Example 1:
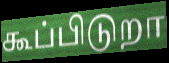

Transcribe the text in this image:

கூப்பிடுறா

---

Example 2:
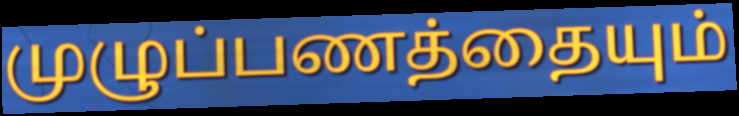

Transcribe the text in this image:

முழுப்பணத்தையும்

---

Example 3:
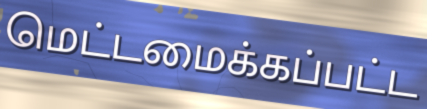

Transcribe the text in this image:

மெட்டமைக்கப்பட்ட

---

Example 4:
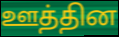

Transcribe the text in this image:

ஊத்தின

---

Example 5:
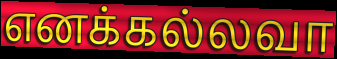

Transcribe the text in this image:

எனக்கல்லவா